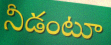
నీడంటూ